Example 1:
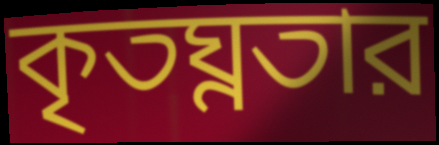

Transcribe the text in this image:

কৃতঘ্নতার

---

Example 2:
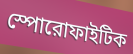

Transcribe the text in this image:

স্পোরোফাইটিক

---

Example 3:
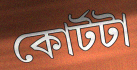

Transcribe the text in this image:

কোর্টটা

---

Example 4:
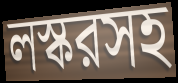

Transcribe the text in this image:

লস্করসহ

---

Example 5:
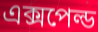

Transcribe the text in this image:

এক্সপেল্ড